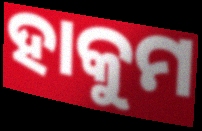
ହାକୁମ